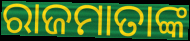
ରାଜମାତାଙ୍କ